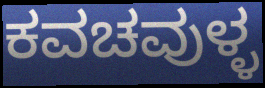
ಕವಚವುಳ್ಳ